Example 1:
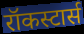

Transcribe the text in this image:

रॉकस्टार्स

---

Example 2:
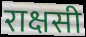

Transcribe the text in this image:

राक्षसी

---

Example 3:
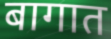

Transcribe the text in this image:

बागात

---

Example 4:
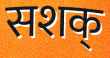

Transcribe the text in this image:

सशक्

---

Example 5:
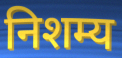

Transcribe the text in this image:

निशम्य